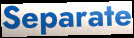
Separate